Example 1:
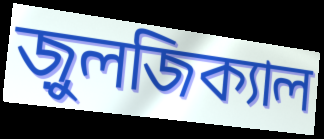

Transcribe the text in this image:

জ়ুলজিক্যাল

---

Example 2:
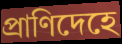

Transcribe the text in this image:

প্রাণিদেহে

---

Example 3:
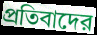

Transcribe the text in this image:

প্রতিবাদের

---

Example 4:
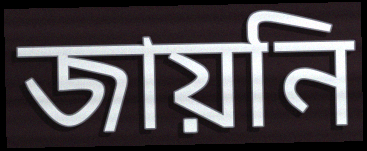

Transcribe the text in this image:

জায়নি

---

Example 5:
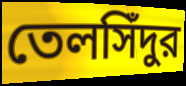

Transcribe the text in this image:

তেলসিঁদুর